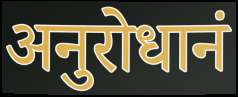
अनुरोधानं